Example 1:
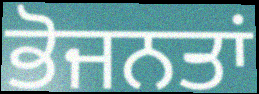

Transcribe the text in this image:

ਭੋਜਨਤਾਂ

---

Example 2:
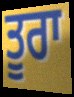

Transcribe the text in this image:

ਤੂਰਾ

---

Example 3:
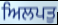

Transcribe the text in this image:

ਅਿਲਪਤੁ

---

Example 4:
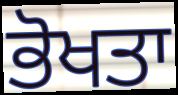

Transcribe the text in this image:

ਭੋਖਤਾ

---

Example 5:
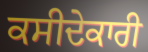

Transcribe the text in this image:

ਕਸੀਦੇਕਾਰੀ